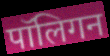
पॉलिगन